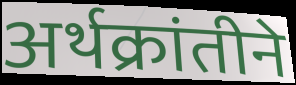
अर्थक्रांतीने